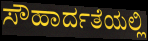
ಸೌಹಾರ್ದತೆಯಲ್ಲಿ